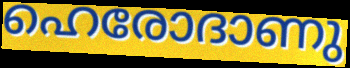
ഹെരോദാണു